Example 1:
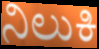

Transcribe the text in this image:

ನಿಲುಕಿ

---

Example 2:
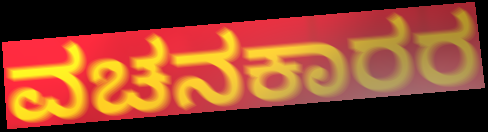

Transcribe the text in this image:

ವಚನಕಾರರ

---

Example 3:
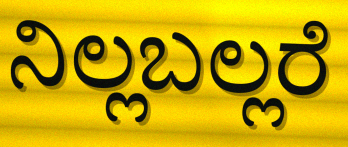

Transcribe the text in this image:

ನಿಲ್ಲಬಲ್ಲರೆ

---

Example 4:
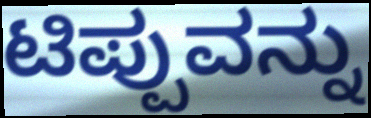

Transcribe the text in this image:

ಟಿಪ್ಪುವನ್ನು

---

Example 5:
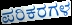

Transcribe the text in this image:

ಪರಿಕರಗಳ